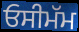
ਓਸੀਮੱਮ